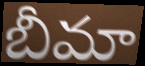
బీమా